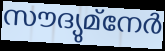
സൗദ്യുമ്നേർ